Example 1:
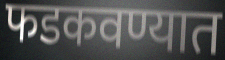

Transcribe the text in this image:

फडकवण्यात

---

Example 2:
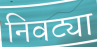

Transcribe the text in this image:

निवट्या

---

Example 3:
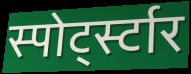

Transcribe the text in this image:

स्पोर्ट्स्टार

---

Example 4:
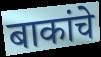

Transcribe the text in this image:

बाकांचे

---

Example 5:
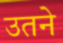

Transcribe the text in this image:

उतने